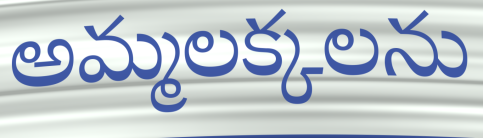
అమ్మలక్కలను